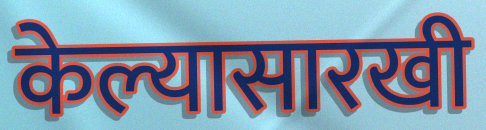
केल्यासारखी